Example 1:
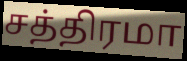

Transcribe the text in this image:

சத்திரமா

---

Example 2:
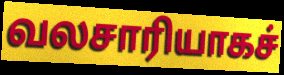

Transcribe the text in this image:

வலசாரியாகச்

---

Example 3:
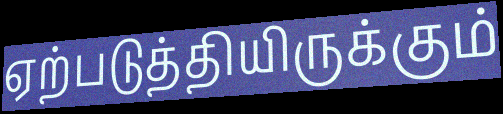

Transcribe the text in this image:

ஏற்படுத்தியிருக்கும்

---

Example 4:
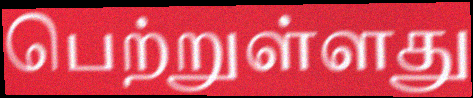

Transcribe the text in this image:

பெற்றுள்ளது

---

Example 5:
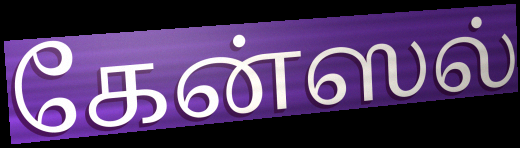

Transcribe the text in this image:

கேன்ஸல்